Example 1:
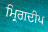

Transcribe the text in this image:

ਮ੍ਰਿਗਦੀਪ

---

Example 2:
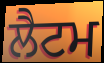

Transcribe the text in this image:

ਲੈਟਮ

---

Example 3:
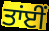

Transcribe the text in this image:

ਤਾਂਈਂ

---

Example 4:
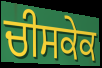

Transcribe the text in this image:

ਚੀਸਕੇਕ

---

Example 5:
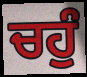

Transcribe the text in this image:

ਚਹੁੰ